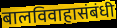
बालविवाहासंबंधी